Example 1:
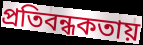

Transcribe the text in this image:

প্রতিবন্ধকতায়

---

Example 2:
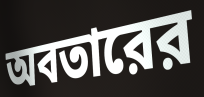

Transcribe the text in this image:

অবতারের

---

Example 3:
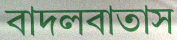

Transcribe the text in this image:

বাদলবাতাস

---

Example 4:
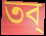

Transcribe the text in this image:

তব্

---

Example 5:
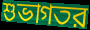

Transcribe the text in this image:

শুভাগতর